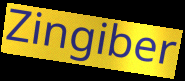
Zingiber